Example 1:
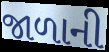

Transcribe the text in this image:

જાળાની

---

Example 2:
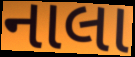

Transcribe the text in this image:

નાલા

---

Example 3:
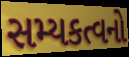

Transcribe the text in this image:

સમ્યકત્વનો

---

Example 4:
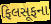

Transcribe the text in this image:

ફિલસૂફના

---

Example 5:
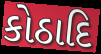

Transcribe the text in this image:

કોઠાદિ